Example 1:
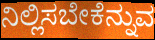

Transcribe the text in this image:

ನಿಲ್ಲಿಸಬೇಕೆನ್ನುವ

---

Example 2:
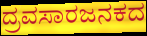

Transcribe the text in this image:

ದ್ರವಸಾರಜನಕದ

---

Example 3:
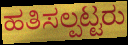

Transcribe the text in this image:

ಹತಿಸಲ್ಪಟ್ಟರು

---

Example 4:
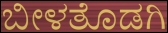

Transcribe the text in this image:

ಬೀಳತೊಡಗಿ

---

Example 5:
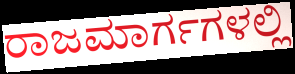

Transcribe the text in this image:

ರಾಜಮಾರ್ಗಗಳಲ್ಲಿ